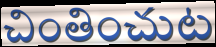
చింతించుట